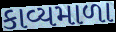
કાવ્યમાળા